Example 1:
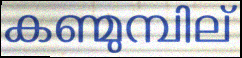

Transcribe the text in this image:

കണ്മുമ്പില്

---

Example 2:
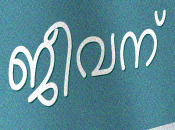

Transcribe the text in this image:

ജീവന്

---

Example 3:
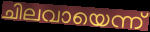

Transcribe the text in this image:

ചിലവായെന്ന്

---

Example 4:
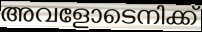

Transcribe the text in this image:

അവളോടെനിക്ക്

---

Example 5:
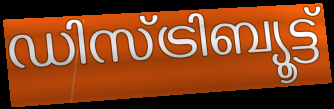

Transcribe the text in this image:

ഡിസ്ട്രിബ്യൂട്ട്